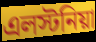
এলস্টনিয়া